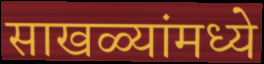
साखळ्यांमध्ये